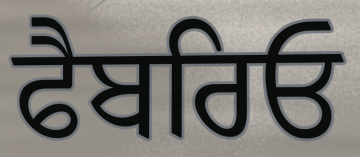
ਫੈਬਰਿਓ